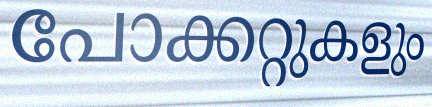
പോക്കറ്റുകളും